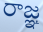
రాజ్ఞ